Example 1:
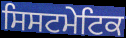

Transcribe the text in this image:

ਸਿਸਟਮੇਟਿਕ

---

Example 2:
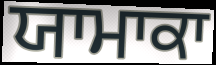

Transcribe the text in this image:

ਯਾਮਾਕਾ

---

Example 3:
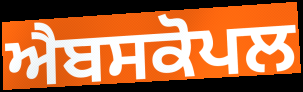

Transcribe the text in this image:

ਐਬਸਕੋਪਲ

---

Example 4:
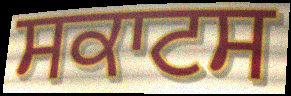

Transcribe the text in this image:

ਸਕਾਟਸ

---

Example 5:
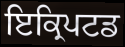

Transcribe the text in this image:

ਇਕ੍ਰਿਪਟਡ